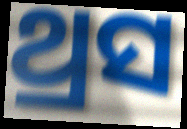
ଥ୍ରସ